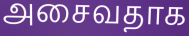
அசைவதாக